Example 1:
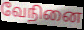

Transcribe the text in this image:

வேநினை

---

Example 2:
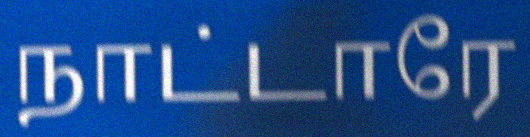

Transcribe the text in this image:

நாட்டாரே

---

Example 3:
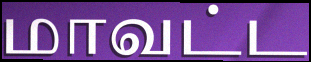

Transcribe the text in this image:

மாவட்ட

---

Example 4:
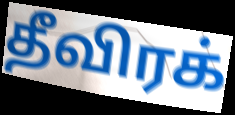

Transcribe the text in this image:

தீவிரக்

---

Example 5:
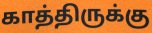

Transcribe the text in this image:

காத்திருக்கு